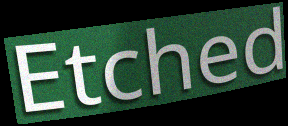
Etched